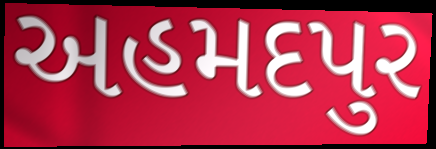
અહમદપુર